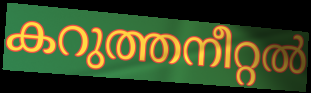
കറുത്തനീറ്റൽ